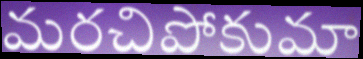
మరచిపోకుమా